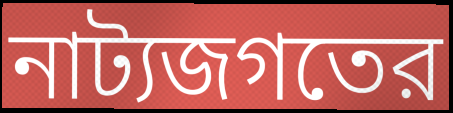
নাট্যজগতের